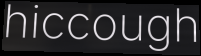
hiccough